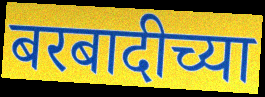
बरबादीच्या